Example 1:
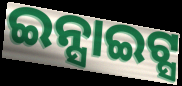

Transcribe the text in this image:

ଇନ୍ସାଇଟ୍ସ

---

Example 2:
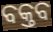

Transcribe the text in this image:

ବକ୍ତବ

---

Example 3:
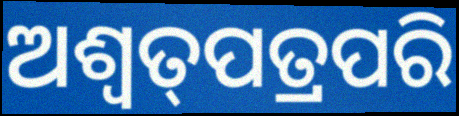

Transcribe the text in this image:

ଅଶ୍ଵତ୍‌ପତ୍ରପରି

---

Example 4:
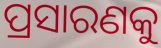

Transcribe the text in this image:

ପ୍ରସାରଣକୁ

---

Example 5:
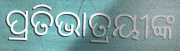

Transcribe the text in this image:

ପ୍ରତିଭାତ୍ରୟୀଙ୍କ